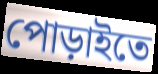
পোড়াইতে